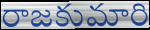
రాజకుమారి